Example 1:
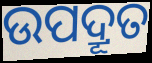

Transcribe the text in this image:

ଉପଦ୍ରୂତ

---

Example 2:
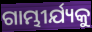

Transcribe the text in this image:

ଗାମ୍ଭୀର୍ଯ୍ୟକୁ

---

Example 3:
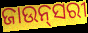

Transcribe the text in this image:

ଜାଉନ୍‌ସରୀ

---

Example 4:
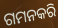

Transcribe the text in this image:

ଗମନକରି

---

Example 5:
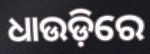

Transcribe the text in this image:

ଧାଉଡ଼ିରେ